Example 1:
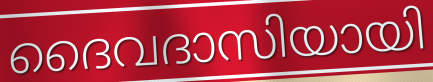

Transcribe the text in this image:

ദൈവദാസിയായി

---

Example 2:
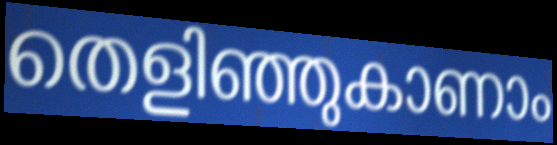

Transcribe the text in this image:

തെളിഞ്ഞുകാണാം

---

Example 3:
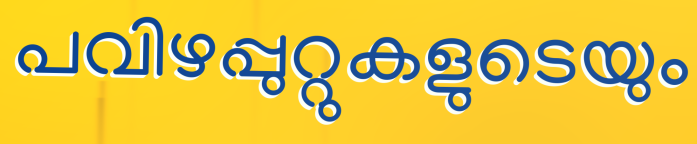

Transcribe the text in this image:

പവിഴപ്പുറ്റുകളുടെയും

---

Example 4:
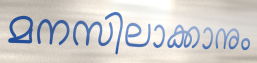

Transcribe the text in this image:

മനസിലാക്കാനും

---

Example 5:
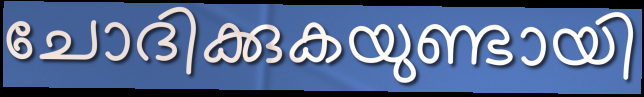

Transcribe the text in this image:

ചോദിക്കുകയുണ്ടായി